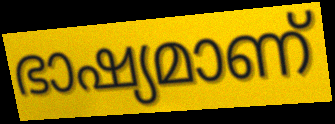
ഭാഷ്യമാണ്